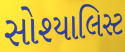
સોશ્યાલિસ્ટ